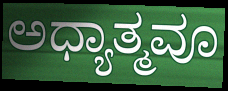
ಅಧ್ಯಾತ್ಮವೂ